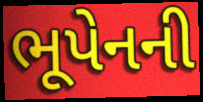
ભૂપેનની